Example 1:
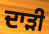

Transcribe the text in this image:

ਦਾੜੀ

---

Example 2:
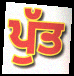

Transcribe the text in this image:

ਪੁੱਤ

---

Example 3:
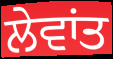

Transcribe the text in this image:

ਲੇਵਾਂਤ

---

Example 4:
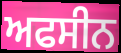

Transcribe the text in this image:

ਅਫਸੀਨ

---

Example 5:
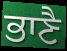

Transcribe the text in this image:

ਭਾਣੈ